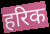
हरिक